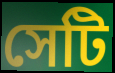
সেটি